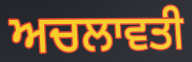
ਅਚਲਾਵਤੀ